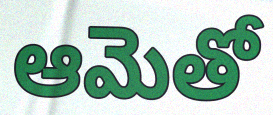
ఆమెతో